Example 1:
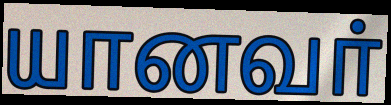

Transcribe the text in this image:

யானவர்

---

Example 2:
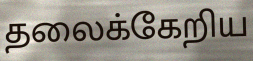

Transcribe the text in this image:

தலைக்கேறிய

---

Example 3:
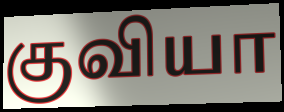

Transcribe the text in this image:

குவியா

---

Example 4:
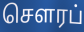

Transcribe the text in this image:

செளரப்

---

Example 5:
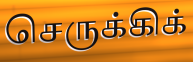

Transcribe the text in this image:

செருக்கிக்